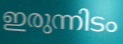
ഇരുന്നിടം